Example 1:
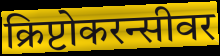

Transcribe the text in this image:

क्रिप्टोकरन्सीवर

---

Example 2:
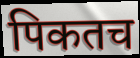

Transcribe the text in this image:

पिकतच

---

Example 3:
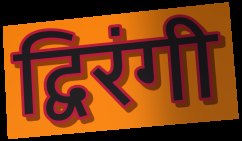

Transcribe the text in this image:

द्विरंगी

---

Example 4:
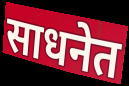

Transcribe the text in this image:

साधनेत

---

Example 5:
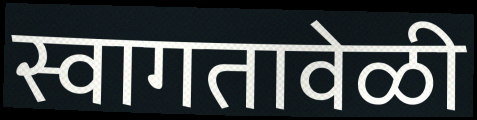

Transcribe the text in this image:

स्वागतावेळी